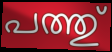
പത്തു്